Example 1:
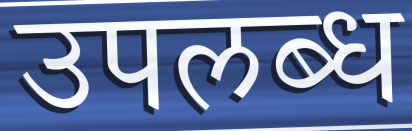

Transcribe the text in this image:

उपलब्ध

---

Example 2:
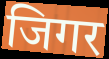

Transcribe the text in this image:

जिगर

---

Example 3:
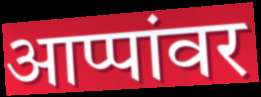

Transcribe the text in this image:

आप्पांवर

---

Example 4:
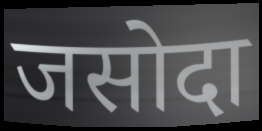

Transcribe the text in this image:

जसोदा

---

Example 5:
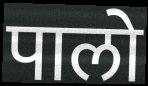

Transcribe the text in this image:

पालो